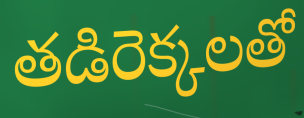
తడిరెక్కలతో